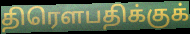
திரௌபதிக்குக்